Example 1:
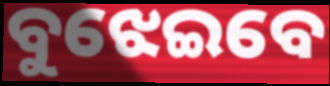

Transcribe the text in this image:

ବୁଝେଇବେ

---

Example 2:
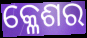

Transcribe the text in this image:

କ୍ଳେଶର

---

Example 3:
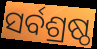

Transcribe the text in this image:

ସର୍ବଶ୍ରଷ୍ଠ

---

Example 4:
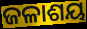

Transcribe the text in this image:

ଜଳାଶୟ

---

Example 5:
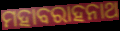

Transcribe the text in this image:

ମହାବରାହନାଥ